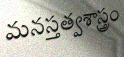
మనస్తత్వశాస్త్రం